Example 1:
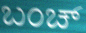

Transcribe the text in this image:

ಬಂಚ್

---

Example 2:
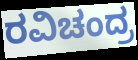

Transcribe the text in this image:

ರವಿಚಂದ್ರ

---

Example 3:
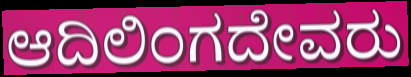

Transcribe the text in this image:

ಆದಿಲಿಂಗದೇವರು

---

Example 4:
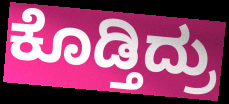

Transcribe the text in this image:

ಕೊಡ್ತಿದ್ರು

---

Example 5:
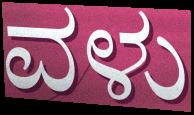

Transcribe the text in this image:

ವಳು